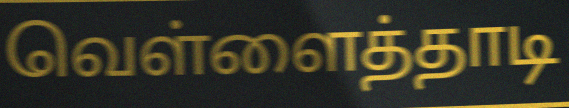
வெள்ளைத்தாடி